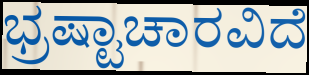
ಭ್ರಷ್ಟಾಚಾರವಿದೆ